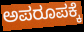
ಅಪರೂಪಕ್ಕೆ